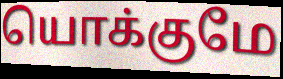
யொக்குமே